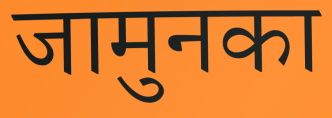
जामुनका